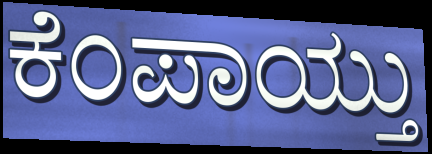
ಕೆಂಪಾಯ್ತು